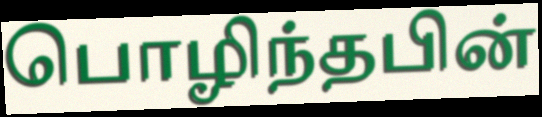
பொழிந்தபின்